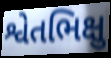
શ્વેતભિક્ષુ